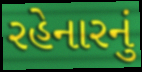
રહેનારનું